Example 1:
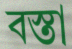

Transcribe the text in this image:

বস্তা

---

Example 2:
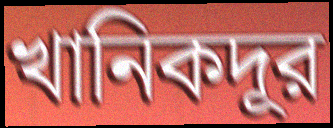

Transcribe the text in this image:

খানিকদূর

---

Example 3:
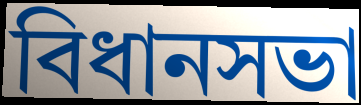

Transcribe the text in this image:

বিধানসভা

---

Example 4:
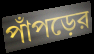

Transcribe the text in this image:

পাঁপড়ের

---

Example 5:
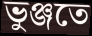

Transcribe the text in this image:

ভুঞ্জতে